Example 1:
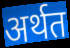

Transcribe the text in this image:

अर्थत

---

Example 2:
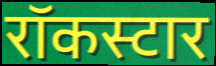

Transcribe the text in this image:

रॉकस्टार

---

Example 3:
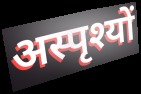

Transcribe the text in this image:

अस्पृश्यों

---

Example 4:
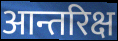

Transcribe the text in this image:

आन्तरिक्ष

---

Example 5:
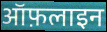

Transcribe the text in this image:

ऑफ़लाइन